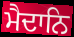
ਮੈਦਾਨਿ